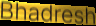
Bhadresh